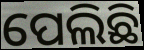
ପେଲିଛି